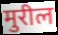
मुरील